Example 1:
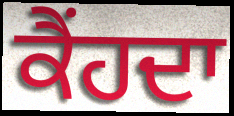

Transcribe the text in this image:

ਕੈਂਹਦਾ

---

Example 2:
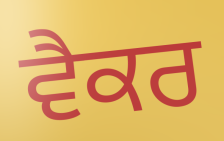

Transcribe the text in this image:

ਵੈਕਰ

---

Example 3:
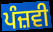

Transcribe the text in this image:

ਪੰਜ਼ਵੀ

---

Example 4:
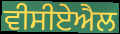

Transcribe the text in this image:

ਵੀਸੀਏਐਲ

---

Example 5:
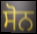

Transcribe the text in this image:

ਸੋਨ